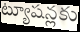
ట్యూషన్లకు